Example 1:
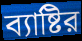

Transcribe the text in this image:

ব্যাষ্টির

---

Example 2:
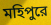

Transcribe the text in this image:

মহিপুরে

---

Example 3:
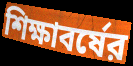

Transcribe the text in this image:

শিক্ষাবর্ষের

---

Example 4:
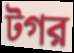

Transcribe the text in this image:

টগর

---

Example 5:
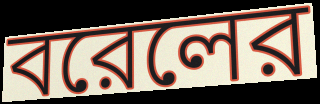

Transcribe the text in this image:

বরেলের